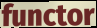
functor